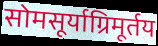
सोमसूर्याग्रिमूर्तय